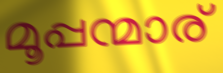
മൂപ്പന്മാര്